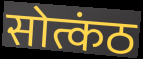
सोत्कंठ